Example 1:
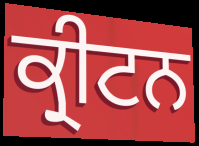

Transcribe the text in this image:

ਕ੍ਰੀਟਨ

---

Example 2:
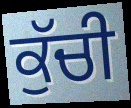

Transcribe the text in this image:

ਕੁੱਚੀ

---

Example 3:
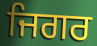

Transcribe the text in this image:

ਜਿਗਰ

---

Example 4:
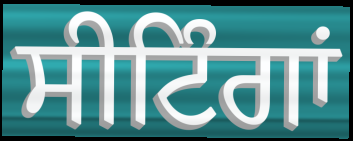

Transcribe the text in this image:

ਸੀਟਿੰਗਾਂ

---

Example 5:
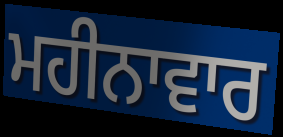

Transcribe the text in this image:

ਮਹੀਨਾਵਾਰ